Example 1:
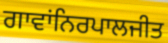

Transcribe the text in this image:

ਗਾਵਾਂਨਿਰਪਾਲਜੀਤ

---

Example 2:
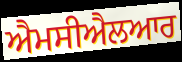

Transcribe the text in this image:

ਐਮਸੀਐਲਆਰ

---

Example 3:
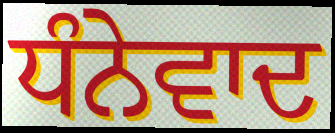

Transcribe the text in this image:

ਧੰਨੇਵਾਦ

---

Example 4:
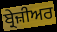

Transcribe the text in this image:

ਬ੍ਰੇਜ਼ੀਅਰ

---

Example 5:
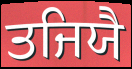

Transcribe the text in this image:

ਤਜਿਯੈ